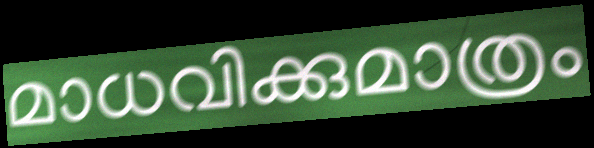
മാധവിക്കുമാത്രം